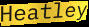
Heatley